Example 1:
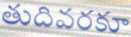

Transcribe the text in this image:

తుదివరకూ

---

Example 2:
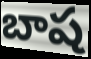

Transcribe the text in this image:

బాష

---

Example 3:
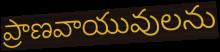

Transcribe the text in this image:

ప్రాణవాయువులను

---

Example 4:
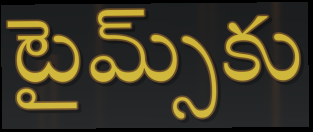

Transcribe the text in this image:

టైమ్స్‌కు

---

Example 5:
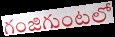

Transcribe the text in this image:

గంజిగుంటలో